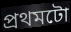
প্ৰথমটো